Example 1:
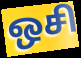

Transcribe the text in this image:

ஒசி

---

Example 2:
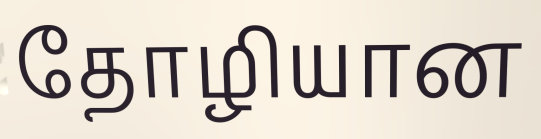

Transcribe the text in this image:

தோழியான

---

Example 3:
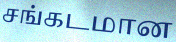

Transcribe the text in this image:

சங்கடமான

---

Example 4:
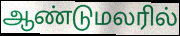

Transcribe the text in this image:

ஆண்டுமலரில்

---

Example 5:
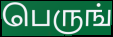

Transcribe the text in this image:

பெருங்